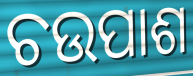
ଚଉପାଶ